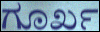
ಗೂರ್ಖ